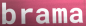
brama